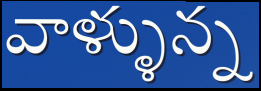
వాళ్ళున్న